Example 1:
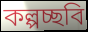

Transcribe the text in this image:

কল্পচ্ছবি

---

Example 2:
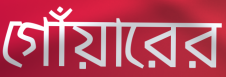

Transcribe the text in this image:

গোঁয়ারের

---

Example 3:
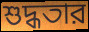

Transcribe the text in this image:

শুদ্ধতার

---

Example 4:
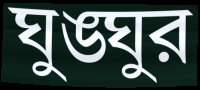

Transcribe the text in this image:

ঘুঙ্ঘুর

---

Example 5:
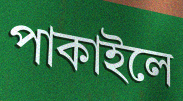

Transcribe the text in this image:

পাকাইলে